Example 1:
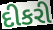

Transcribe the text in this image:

દીકરી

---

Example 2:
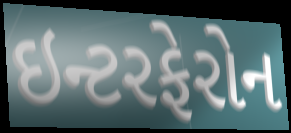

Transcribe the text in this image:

ઇન્ટરફેરોન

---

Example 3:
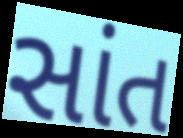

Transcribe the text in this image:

સાંત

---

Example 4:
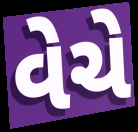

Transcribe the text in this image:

વેચે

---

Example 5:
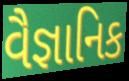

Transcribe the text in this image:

વૈજ્ઞાનિક